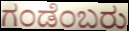
ಗಂಡೆಂಬರು